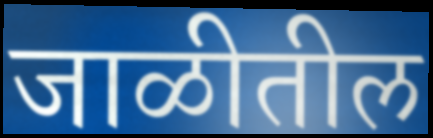
जाळीतील